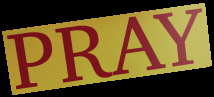
PRAY